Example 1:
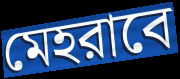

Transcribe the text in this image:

মেহরাবে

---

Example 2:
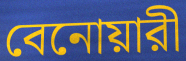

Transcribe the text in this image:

বেনোয়ারী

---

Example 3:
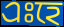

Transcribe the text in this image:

এঃহে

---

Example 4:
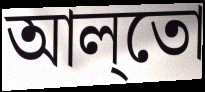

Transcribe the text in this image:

আল্‌তো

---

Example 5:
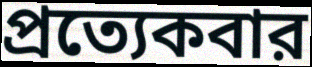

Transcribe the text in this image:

প্রত্যেকবার